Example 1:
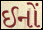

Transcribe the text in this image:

ઈનોં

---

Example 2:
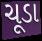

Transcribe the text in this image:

ચૂડા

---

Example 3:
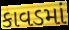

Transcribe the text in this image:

કાવડમાં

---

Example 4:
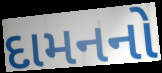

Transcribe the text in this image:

દામનનો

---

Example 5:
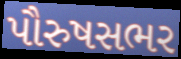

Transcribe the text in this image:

પૌરુષસભર